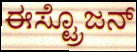
ಈಸ್ಟ್ರೊಜನ್